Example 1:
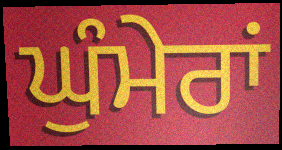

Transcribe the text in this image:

ਘੁੰਮੇਰਾਂ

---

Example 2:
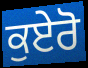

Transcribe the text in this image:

ਕੁਏਰੋ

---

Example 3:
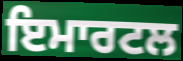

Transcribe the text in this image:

ਇਮਾਰਟਲ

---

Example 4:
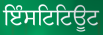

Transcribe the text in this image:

ਇੰਸਟਿਟਿਊਟ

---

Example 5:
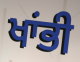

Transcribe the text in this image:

ਖਾਂਭੀ